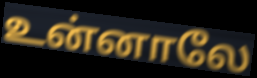
உன்னாலே